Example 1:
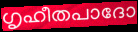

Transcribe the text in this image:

ഗൃഹീതപാദോ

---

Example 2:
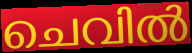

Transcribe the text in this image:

ചെവിൽ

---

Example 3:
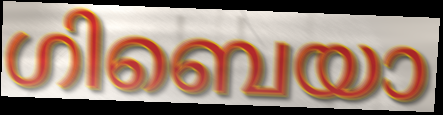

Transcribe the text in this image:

ഗിബെയാ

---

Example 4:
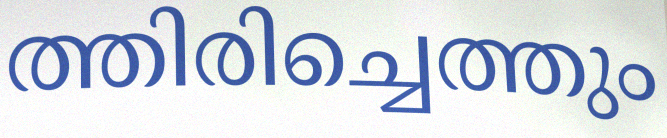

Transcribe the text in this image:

ത്തിരിച്ചെത്തും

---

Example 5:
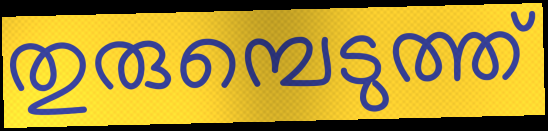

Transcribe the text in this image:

തുരുമ്പെടുത്ത്